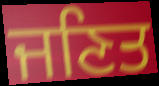
ਜਣਿਤ